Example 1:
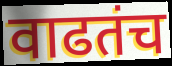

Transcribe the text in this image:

वाढतंच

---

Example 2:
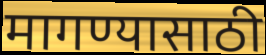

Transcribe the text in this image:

मागण्यासाठी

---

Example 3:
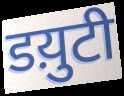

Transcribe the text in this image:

डय़ुटी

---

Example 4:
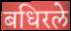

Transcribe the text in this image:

बधिरले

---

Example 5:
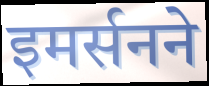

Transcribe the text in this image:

इमर्सनने